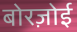
बोरज़ोई